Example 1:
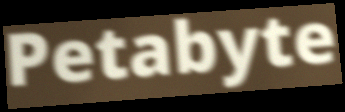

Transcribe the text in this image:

Petabyte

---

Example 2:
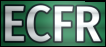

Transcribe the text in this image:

ECFR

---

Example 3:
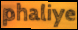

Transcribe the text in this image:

phaliye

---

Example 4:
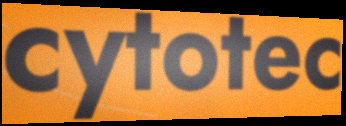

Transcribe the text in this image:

cytotec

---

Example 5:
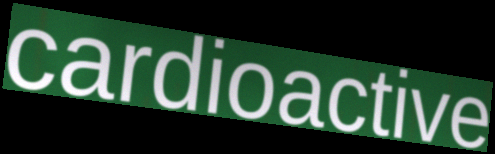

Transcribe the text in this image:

cardioactive